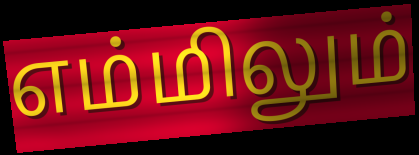
எம்மிலும்